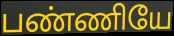
பண்ணியே